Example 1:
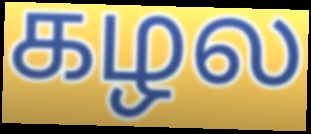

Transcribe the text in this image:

கழல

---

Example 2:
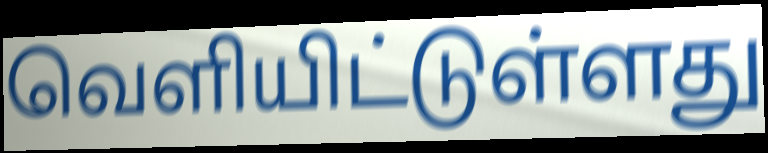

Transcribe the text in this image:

வெளியிட்டுள்ளது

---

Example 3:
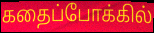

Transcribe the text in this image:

கதைப்போக்கில்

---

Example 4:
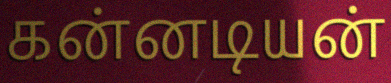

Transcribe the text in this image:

கன்னடியன்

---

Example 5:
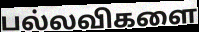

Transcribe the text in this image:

பல்லவிகளை